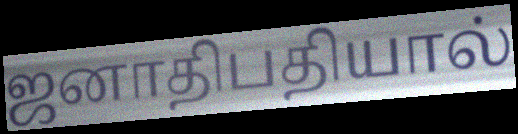
ஜனாதிபதியால்